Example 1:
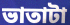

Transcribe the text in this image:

ভাতাটা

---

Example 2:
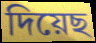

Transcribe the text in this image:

দিয়েছ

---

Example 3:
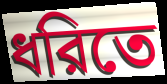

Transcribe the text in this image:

ধরিতে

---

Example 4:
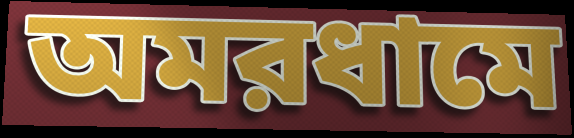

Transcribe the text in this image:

অমরধামে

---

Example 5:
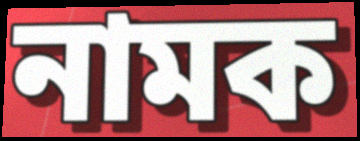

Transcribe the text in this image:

নামক